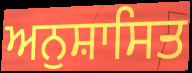
ਅਨੁਸ਼ਾਸਿਤ